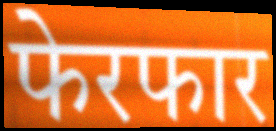
फेरफार